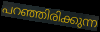
പറഞ്ഞിരിക്കുന്ന